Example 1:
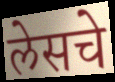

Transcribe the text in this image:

लेसचे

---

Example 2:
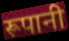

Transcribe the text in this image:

रूपानी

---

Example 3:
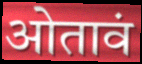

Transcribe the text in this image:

ओतावं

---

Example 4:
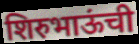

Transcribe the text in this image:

शिरुभाऊंची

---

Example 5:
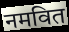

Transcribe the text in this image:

नमवित